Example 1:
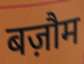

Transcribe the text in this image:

बज़ौम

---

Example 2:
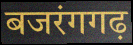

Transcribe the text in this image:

बजरंगगढ़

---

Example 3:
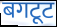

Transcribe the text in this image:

बगटूट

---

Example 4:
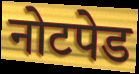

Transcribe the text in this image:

नोटपेड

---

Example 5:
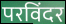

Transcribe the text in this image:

परविंदर